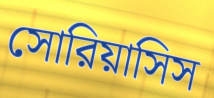
সোরিয়াসিস